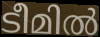
ടീമിൽ